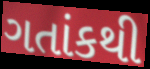
ગતાંકથી